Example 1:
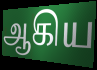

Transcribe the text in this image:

ஆகிய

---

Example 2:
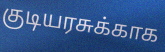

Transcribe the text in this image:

குடியரசுக்காக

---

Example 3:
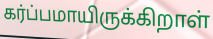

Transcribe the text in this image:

கர்ப்பமாயிருக்கிறாள்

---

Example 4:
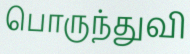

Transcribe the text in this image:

பொருந்துவி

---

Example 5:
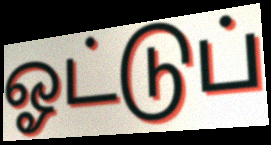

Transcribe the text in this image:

ஓட்டுப்